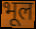
भूल